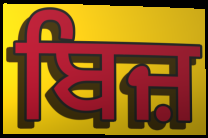
ਬਿਜ਼